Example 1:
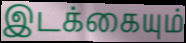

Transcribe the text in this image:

இடக்கையும்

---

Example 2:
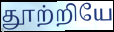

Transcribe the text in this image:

தூற்றியே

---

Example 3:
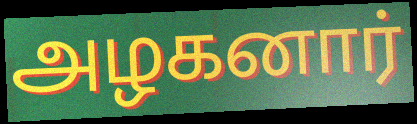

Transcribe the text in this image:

அழகனார்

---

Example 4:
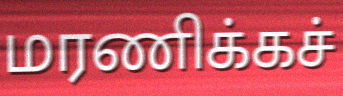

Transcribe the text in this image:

மரணிக்கச்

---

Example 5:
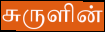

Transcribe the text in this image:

சுருளின்